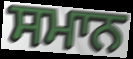
ਸਮਾਨ